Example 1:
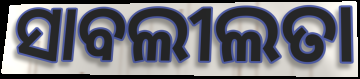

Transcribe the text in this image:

ସାବଲୀଲତା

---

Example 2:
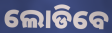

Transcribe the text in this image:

ଲୋଡିବେ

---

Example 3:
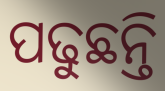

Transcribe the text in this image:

ପଢୁଛନ୍ତି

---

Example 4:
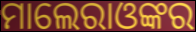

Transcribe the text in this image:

ମାଲେରାଓଙ୍କର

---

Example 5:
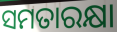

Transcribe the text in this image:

ସମତାରକ୍ଷା